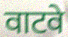
वाटवे